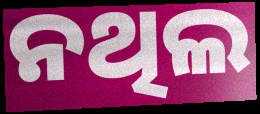
ନଥିଲ